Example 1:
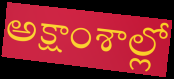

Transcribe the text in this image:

అక్షాంశాల్లో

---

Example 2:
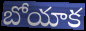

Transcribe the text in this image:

బోయాక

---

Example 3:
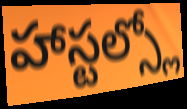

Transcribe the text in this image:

హాస్టల్స్లో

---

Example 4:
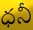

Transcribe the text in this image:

ధనీ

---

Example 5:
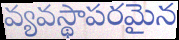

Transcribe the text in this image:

వ్యవస్థాపరమైన